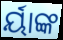
ର୍ୟାଙ୍କ